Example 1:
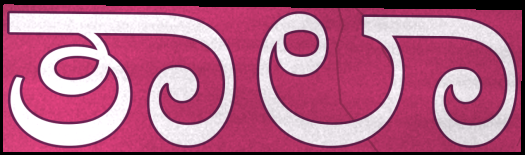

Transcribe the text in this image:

ತಾಲಾ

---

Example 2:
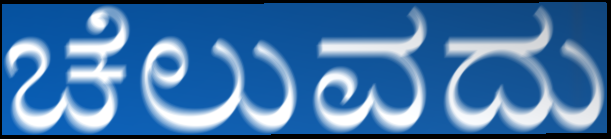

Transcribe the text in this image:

ಚೆಲುವದು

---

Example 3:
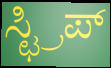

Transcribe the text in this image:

ಸ್ಟ್ರಿಪ್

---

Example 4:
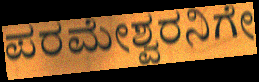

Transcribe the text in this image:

ಪರಮೇಶ್ವರನಿಗೇ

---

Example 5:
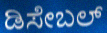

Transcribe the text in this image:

ಡಿಸೇಬಲ್